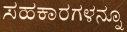
ಸಹಕಾರಗಳನ್ನೂ